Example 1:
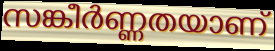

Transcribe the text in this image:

സങ്കീർണ്ണതയാണ്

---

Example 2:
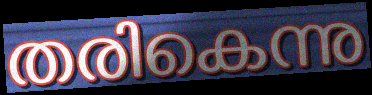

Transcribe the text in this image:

തരികെന്നു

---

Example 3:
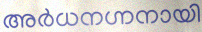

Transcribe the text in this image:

അർധനഗ്നനായി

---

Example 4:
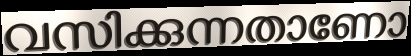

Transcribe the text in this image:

വസിക്കുന്നതാണോ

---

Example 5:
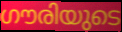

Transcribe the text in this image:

ഗൗരിയുടെ